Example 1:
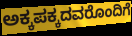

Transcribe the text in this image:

ಅಕ್ಕಪಕ್ಕದವರೊಂದಿಗೆ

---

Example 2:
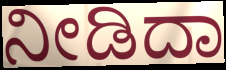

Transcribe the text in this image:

ನೀಡಿದಾ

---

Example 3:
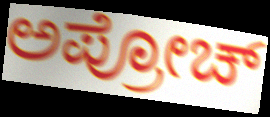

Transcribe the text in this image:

ಅಪ್ರೋಚ್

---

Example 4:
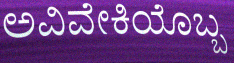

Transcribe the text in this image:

ಅವಿವೇಕಿಯೊಬ್ಬ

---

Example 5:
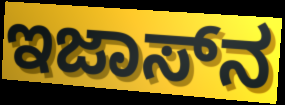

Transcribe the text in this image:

ಇಜಾಸ್‌ನ